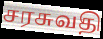
சரசுவதி